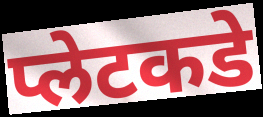
प्लेटकडे